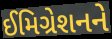
ઈમિગ્રેશનને